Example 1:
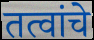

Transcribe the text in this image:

तत्वांचे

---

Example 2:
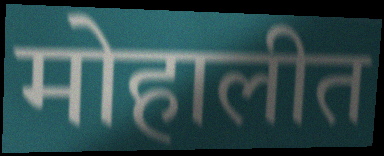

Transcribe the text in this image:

मोहालीत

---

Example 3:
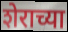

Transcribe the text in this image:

शेराच्या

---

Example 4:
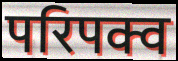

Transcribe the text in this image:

परिपक्व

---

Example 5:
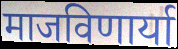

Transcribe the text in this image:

माजविणार्या